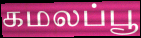
கமலப்பூ